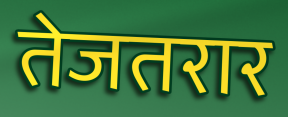
तेजतरार